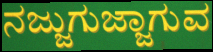
ನಜ್ಜುಗುಜ್ಜಾಗುವ